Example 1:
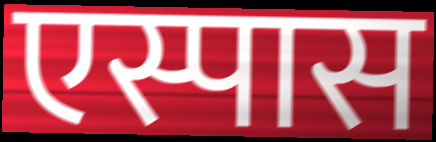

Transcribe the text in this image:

एस्पास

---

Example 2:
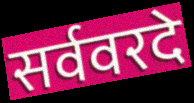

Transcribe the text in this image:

सर्ववरदे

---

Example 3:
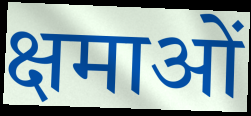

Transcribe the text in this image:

क्षमाओं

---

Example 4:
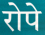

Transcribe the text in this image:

रोपे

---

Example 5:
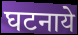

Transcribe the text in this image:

घटनाये